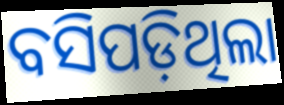
ବସିପଡ଼ିଥିଲା